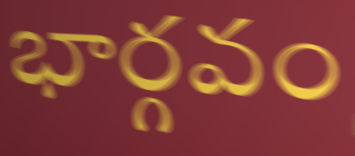
భార్గవం